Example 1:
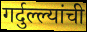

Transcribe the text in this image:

गर्दुल्ल्यांची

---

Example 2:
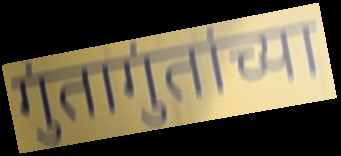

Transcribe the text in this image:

गुंतागुंतांच्या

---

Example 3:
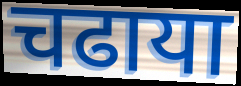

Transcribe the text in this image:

चढाया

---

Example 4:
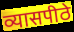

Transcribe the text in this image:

व्यासपीठे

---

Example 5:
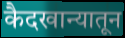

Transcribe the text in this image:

कैदखान्यातून